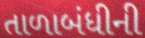
તાળાબંધીની